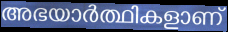
അഭയാർത്ഥികളാണ്